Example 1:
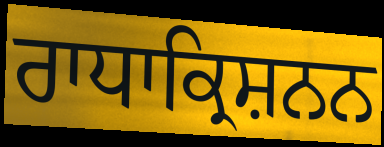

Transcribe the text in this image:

ਰਾਧਾਕ੍ਰਿਸ਼ਨਨ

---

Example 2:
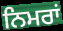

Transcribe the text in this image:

ਨਿਮਰਾਂ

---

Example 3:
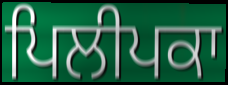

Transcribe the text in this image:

ਪਿਲੀਪਕਾ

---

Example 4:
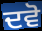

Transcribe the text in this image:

ਦਵੋ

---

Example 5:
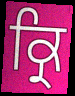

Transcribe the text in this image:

ਕ੍ਰਿ